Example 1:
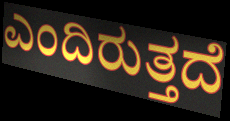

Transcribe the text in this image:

ಎಂದಿರುತ್ತದೆ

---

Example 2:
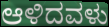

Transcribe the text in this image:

ಆಳಿದವಳು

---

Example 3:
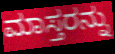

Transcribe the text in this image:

ಮಾಸ್ತರನ್ನು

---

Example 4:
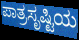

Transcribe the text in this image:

ಪಾತ್ರಸೃಷ್ಟಿಯ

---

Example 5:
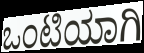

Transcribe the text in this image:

ಒಂಟಿಯಾಗಿ